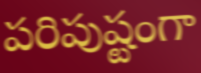
పరిపుష్టంగా